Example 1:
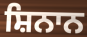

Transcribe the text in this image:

ਸ਼ਿਨਾਨ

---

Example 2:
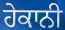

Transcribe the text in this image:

ਹੇਕਾਨੀ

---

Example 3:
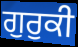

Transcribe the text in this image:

ਗੁਰੁਕੀ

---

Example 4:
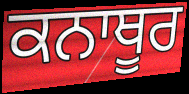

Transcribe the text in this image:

ਕਨਾਥੂਰ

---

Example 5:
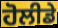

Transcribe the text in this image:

ਹੋਲੀਡੇ